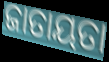
ଜାତାୟତା